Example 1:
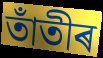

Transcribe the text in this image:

তাঁতীৰ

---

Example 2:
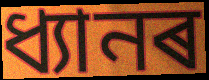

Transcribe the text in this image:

ধ্যানৰ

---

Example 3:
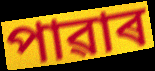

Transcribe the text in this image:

পাৱাৰ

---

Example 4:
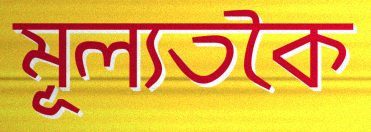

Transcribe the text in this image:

মূল্যতকৈ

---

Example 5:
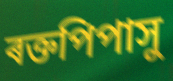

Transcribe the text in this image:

ৰক্তপিপাসু